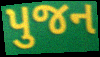
પુજન